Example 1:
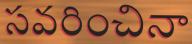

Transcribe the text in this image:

సవరించినా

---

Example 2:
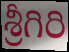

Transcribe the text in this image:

శ్రీగిరి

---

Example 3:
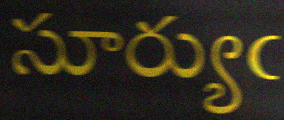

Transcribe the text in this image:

సూర్యుఁ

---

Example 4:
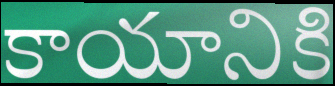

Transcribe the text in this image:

కాయానికి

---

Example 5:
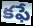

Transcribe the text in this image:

కఫే